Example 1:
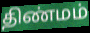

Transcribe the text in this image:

திண்மம்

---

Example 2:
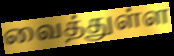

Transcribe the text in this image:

வைத்துள்ள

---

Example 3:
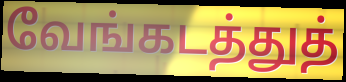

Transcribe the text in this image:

வேங்கடத்துத்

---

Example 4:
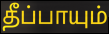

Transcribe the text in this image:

தீப்பாயும்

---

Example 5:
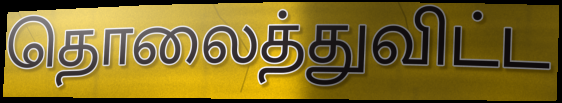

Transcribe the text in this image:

தொலைத்துவிட்ட